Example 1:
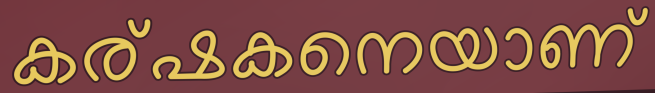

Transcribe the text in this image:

കര്ഷകനെയാണ്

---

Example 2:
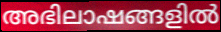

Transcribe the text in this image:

അഭിലാഷങ്ങളിൽ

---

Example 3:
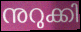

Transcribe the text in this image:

നുറുക്കി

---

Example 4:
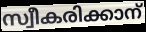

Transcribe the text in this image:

സ്വീകരിക്കാന്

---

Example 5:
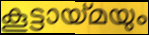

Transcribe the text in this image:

കൂട്ടായ്മയും